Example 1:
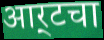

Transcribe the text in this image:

आर्टचा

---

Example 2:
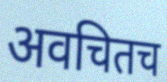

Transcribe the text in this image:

अवचितच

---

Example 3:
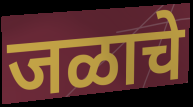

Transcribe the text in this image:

जळाचे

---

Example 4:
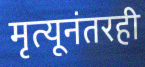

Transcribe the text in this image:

मृत्यूनंतरही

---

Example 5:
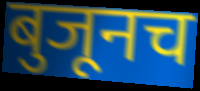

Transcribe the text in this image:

बुजूनच